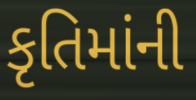
કૃતિમાંની